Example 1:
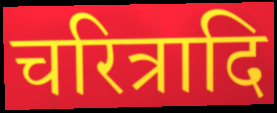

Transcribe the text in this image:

चरित्रादि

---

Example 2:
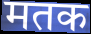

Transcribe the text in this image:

मतक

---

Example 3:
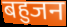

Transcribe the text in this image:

बहुजन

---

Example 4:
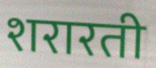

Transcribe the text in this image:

शरारती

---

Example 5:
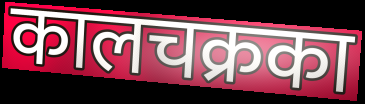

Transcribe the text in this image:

कालचक्रका